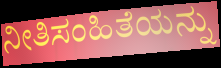
ನೀತಿಸಂಹಿತೆಯನ್ನು